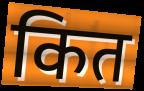
कित